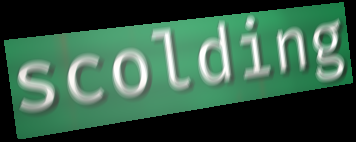
scolding